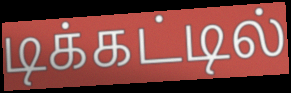
டிக்கட்டில்